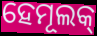
ହେମୂଲକ୍